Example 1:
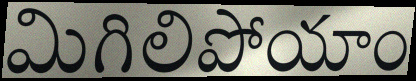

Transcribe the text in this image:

మిగిలిపోయాం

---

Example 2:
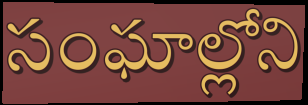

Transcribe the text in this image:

సంఘాల్లోని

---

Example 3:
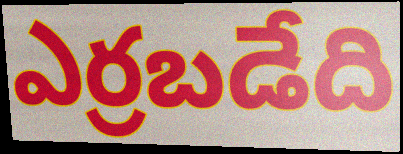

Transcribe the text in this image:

ఎర్రబడేది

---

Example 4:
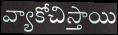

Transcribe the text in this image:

వ్యాకోచిస్తాయి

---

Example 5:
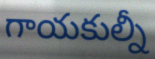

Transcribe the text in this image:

గాయకుల్నీ